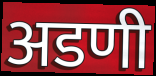
अडणी